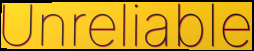
Unreliable